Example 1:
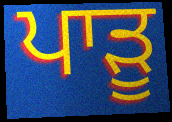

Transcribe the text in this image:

ਪਾੜੂ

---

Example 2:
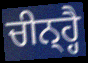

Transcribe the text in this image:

ਚੀਨ੍ਹ੍ਹੈ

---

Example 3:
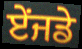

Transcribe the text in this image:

ਏਂਜਡੇ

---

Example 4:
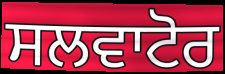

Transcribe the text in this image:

ਸਲਵਾਟੋਰ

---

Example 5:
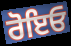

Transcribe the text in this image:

ਰੋਇਓ